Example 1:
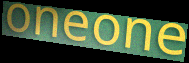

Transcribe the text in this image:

oneone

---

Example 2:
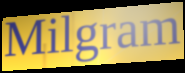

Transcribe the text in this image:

Milgram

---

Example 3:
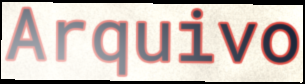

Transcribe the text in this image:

Arquivo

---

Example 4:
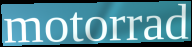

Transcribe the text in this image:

motorrad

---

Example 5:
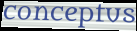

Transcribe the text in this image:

conceptus